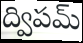
ద్విపమ్